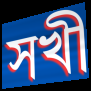
সখী